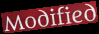
Modified